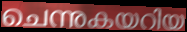
ചെന്നുകയറിയ